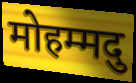
मोहम्मदु